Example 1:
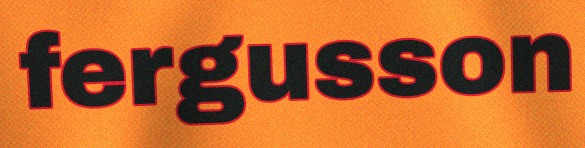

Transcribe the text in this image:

fergusson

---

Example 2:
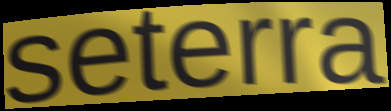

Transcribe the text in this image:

seterra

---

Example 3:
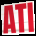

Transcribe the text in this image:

ATI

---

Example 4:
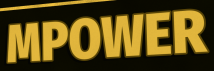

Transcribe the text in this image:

MPOWER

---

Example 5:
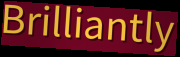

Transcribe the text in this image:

Brilliantly